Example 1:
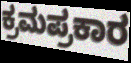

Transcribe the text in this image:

ಕ್ರಮಪ್ರಕಾರ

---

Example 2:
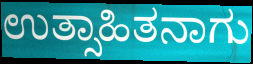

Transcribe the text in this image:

ಉತ್ಸಾಹಿತನಾಗು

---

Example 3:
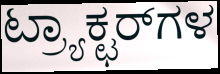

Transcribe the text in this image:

ಟ್ರ್ಯಾಕ್ಟರ್‌ಗಳ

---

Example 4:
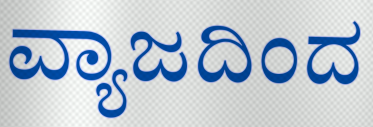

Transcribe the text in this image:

ವ್ಯಾಜದಿಂದ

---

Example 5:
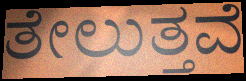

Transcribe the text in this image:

ತೇಲುತ್ತವೆ